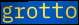
grotto